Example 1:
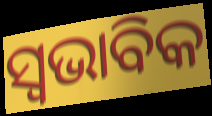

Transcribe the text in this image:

ସ୍ଵଭାବିକ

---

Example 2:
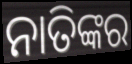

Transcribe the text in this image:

ନାତିଙ୍କର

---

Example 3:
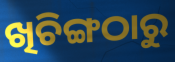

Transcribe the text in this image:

ଖିଚିଙ୍ଗଠାରୁ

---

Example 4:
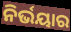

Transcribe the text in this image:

ନିର୍ଭୟାର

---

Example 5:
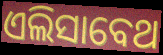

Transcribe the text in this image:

ଏଲିସାବେଥ